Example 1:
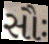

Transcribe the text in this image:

સૌઃ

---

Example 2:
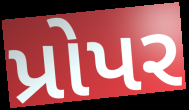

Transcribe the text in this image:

પ્રોપર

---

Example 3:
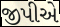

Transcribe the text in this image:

જીપીએ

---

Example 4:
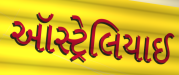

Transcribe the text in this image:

ઑસ્ટ્રેલિયાઈ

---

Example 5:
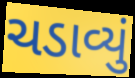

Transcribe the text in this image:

ચડાવ્યું